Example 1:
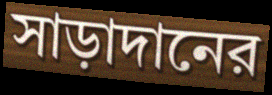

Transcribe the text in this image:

সাড়াদানের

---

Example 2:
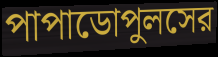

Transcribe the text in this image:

পাপাডোপুলসের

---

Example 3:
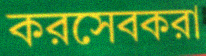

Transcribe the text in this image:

করসেবকরা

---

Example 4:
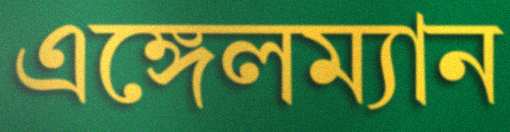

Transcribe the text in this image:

এঙ্গেলম্যান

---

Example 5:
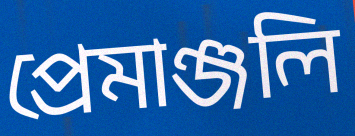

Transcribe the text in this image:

প্রেমাঞ্জলি